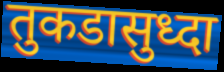
तुकडासुध्दा